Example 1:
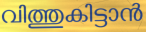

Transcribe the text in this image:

വിത്തുകിട്ടാൻ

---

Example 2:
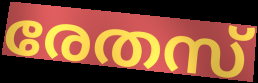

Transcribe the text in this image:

രേതസ്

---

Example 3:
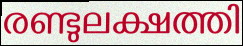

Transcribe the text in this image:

രണ്ടുലക്ഷത്തി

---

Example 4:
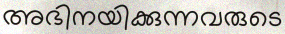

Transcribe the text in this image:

അഭിനയിക്കുന്നവരുടെ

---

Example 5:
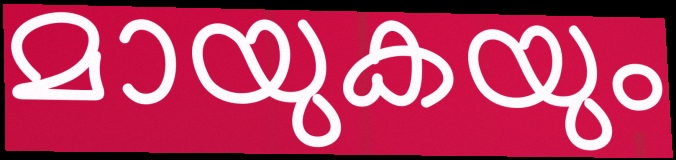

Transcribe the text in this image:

മായുകയും